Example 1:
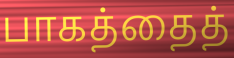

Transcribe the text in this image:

பாகத்தைத்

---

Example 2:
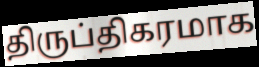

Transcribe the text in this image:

திருப்திகரமாக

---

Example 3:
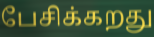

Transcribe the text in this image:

பேசிக்கறது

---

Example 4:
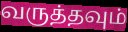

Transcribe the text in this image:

வருத்தவும்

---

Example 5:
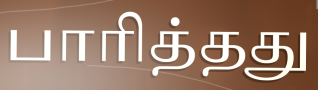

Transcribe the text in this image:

பாரித்தது